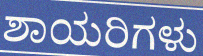
ಶಾಯರಿಗಳು